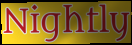
Nightly